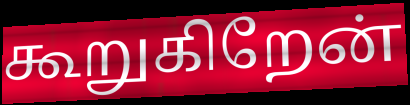
கூறுகிறேன்